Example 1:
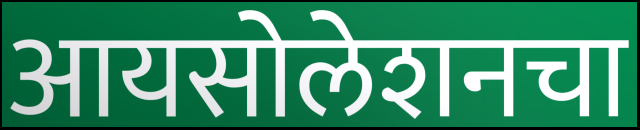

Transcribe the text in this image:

आयसोलेशनचा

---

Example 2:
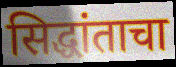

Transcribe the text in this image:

सिद्धांताचा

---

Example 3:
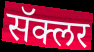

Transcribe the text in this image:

सॅक्लर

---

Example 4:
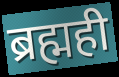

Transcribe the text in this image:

ब्रह्मही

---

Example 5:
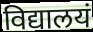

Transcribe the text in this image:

विद्यालयं